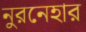
নুরনেহার